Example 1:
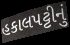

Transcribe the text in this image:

હકાલપટ્ટીનું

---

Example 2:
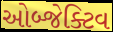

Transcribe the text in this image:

ઓબ્જેક્ટિવ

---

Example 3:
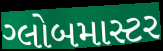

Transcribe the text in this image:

ગ્લોબમાસ્ટર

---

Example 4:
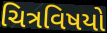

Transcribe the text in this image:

ચિત્રવિષયો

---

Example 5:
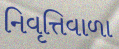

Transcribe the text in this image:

નિવૃત્તિવાળા